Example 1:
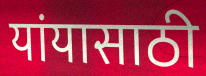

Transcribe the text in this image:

यांयासाठी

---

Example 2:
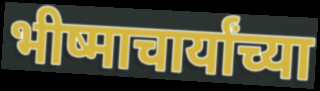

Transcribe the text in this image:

भीष्माचार्यांच्या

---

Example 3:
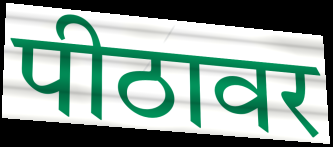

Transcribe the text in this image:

पीठावर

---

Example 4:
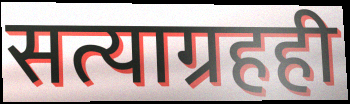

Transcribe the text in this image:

सत्याग्रहही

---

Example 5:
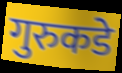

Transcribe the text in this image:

गुरुकडे